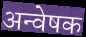
अन्वेषक